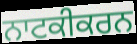
ਨਾਟਕੀਕਰਨ